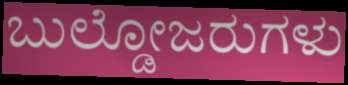
ಬುಲ್ಡೋಜರುಗಳು